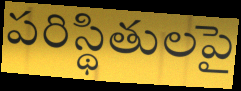
పరిస్థితులపై